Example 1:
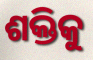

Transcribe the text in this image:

ଶକ୍ତିକୁ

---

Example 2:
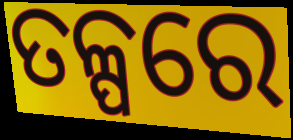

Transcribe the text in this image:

ତଳ୍ପରେ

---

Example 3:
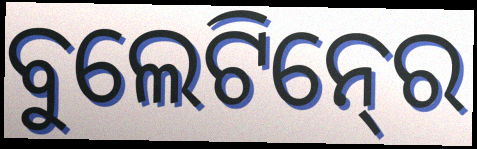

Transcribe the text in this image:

ବୁଲେଟିନ୍‍ରେ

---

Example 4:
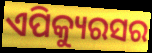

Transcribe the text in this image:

ଏପିକ୍ୟୁରସର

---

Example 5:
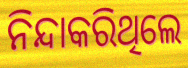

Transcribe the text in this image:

ନିନ୍ଦାକରିଥିଲେ